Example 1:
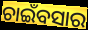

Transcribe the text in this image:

ଚାଇଁବସାର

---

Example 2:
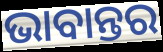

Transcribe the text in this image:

ଭାବାନ୍ତର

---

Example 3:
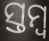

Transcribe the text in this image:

ସ୍ତମ୍ଵ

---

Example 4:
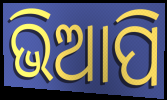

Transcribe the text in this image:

ଭିଆପି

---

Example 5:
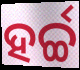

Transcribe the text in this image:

ହର୍ଚ୍ଚ